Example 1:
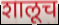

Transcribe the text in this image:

शालूच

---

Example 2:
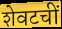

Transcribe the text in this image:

शेवटचीं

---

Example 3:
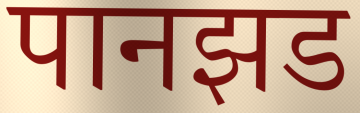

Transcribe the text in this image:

पानझड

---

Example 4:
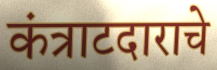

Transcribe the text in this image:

कंत्राटदाराचे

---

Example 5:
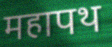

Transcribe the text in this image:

महापथ